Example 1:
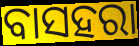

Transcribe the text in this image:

ବାସହରା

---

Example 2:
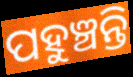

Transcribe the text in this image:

ପହୁଞ୍ଚନ୍ତି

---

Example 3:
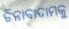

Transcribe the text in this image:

ଚିନାବାଦାମକୁ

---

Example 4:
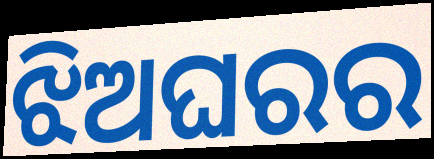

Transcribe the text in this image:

ଝିଅଘରର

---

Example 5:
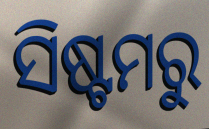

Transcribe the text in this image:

ସିଷ୍ଟମରୁ